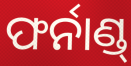
ଫର୍ନାଣ୍ଡ୍